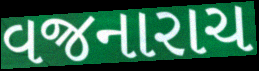
વજ્રનારાચ